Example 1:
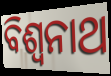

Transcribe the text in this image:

ବିଶ୍ଵନାଥ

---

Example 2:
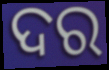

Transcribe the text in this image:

ଦର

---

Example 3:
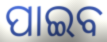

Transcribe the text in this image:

ପାଇବ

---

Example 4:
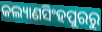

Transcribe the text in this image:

କଲ୍ୟାଣସିଂହପୁରରୁ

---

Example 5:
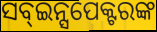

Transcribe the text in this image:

ସବ୍ଇନ୍ସପେକ୍ଟରଙ୍କ